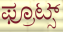
ಫ್ರೂಟ್ಸ್